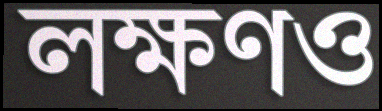
লক্ষণও